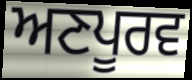
ਅਣਪੂਰਵ